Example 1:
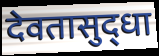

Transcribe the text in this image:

देवतासुद्धा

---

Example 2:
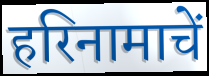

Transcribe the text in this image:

हरिनामाचें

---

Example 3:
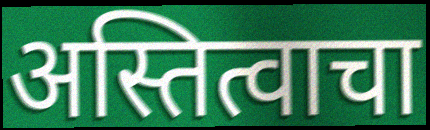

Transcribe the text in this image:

अस्तित्वाचा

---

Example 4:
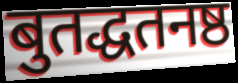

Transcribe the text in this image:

बुतद्धतनष्ठ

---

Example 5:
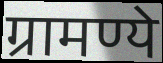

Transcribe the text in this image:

ग्रामण्ये